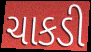
ચાકડી